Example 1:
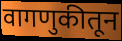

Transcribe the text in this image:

वागणुकीतून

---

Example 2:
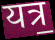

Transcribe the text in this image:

यत्र॒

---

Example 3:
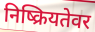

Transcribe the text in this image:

निष्क्रियतेवर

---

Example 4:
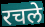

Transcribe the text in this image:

रचले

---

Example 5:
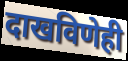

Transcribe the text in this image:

दाखविणेही